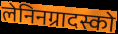
लेनिनग्रादस्को